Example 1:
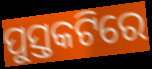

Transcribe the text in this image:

ପୁସ୍ତକଟିରେ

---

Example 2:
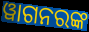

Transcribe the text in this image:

ୱାଗନରଙ୍କ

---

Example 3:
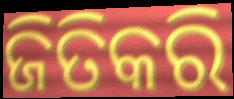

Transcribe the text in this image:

ଜିତିକରି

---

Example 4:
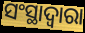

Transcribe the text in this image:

ସଂସ୍ଥାଦ୍ଵାରା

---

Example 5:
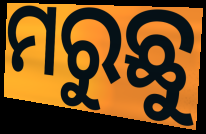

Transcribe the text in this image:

ମରୁଛୁ